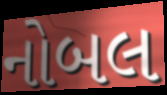
નોબલ